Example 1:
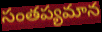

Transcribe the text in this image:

సంతప్యమాన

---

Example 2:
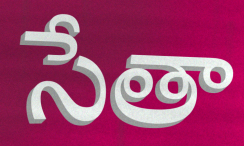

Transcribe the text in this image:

సేతా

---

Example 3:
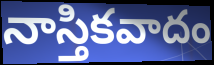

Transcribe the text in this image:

నాస్తికవాదం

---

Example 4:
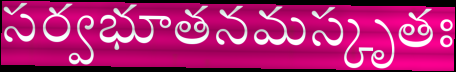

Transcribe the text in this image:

సర్వభూతనమస్కృతః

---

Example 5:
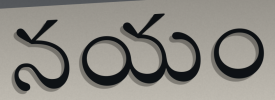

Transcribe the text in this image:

నయం